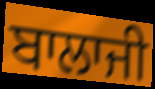
ਬਾਲਾਜੀ